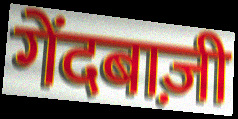
गेंदबाज़ी